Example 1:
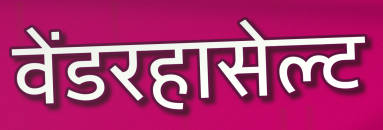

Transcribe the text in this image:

वेंडरहासेल्ट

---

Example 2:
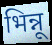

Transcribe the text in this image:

भिन्नू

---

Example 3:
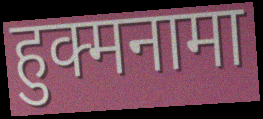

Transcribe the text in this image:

हुक्मनामा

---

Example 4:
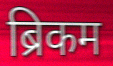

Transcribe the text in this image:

ब्रिकम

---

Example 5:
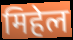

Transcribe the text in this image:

मिहेल